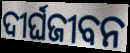
ଦୀର୍ଘଜୀବନ